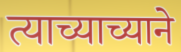
त्याच्याच्याने